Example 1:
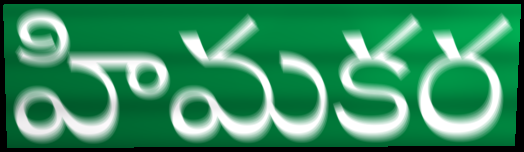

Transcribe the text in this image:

హిమకర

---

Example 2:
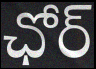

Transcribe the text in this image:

ఛోర్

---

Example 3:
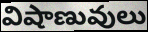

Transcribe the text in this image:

విషాణువులు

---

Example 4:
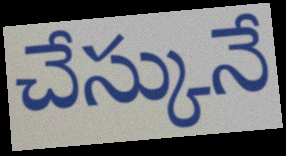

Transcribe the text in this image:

చేస్కునే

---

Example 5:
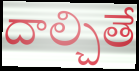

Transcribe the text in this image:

దాల్చితే